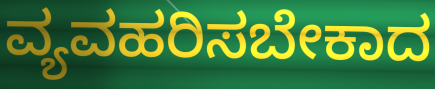
ವ್ಯವಹರಿಸಬೇಕಾದ